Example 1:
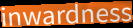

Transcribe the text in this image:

inwardness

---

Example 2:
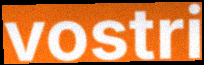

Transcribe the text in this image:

vostri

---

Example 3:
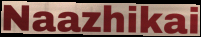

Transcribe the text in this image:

Naazhikai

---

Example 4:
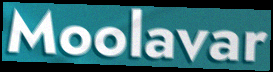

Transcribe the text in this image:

Moolavar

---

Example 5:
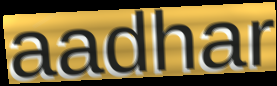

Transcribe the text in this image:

aadhar